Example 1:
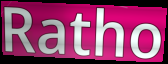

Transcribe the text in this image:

Ratho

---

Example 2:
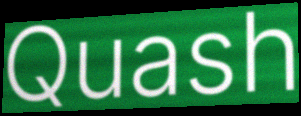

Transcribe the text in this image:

Quash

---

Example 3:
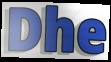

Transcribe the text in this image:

Dhe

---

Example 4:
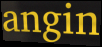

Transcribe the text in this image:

angin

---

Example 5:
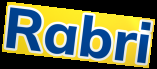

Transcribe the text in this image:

Rabri